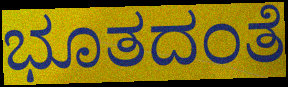
ಭೂತದಂತೆ